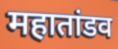
महातांडव